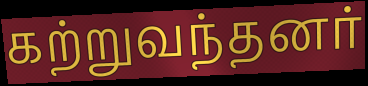
கற்றுவந்தனர்